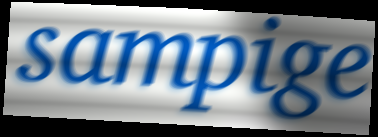
sampige